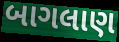
બાગલાણ